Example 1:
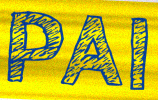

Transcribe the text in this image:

PAI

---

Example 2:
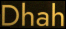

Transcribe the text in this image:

Dhah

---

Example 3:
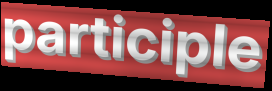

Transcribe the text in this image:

participle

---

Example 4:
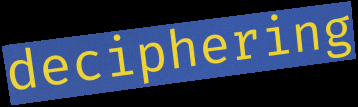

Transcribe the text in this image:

deciphering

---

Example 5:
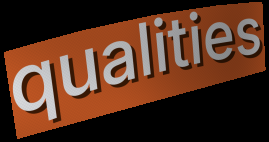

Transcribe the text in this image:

qualities